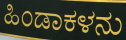
ಹಿಂಡಾಕಳನು